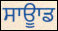
ਸਾਊਾਡ